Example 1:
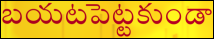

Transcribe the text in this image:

బయటపెట్టకుండా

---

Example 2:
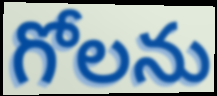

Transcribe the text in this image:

గోలను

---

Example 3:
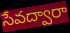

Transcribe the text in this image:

సేవద్వారా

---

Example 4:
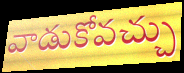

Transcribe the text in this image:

వాడుకోవచ్చు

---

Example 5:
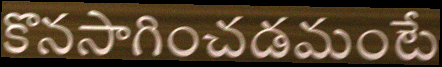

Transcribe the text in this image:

కొనసాగించడమంటే